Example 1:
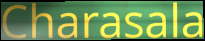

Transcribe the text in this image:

Charasala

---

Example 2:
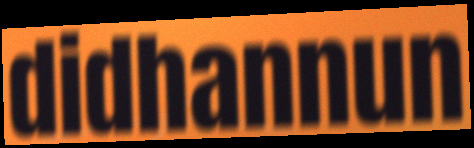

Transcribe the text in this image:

didhannun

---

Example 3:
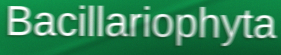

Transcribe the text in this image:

Bacillariophyta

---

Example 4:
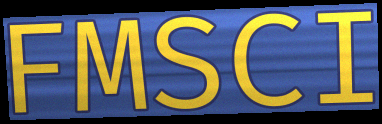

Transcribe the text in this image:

FMSCI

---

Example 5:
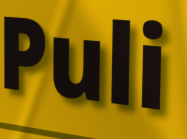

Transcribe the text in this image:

Puli